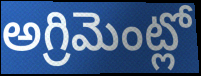
అగ్రిమెంట్లో